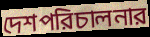
দেশপরিচালনার